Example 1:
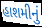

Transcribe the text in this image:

હાશમીનું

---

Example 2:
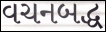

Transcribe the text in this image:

વચનબદ્ધ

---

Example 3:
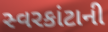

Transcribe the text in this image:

સ્વરકાંટાની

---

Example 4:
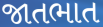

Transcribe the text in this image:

જાતભાત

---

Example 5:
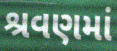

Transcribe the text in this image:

શ્રવણમાં